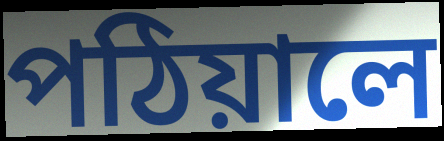
পঠিয়ালে